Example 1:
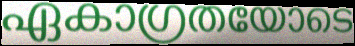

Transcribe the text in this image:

ഏകാഗ്രതയോടെ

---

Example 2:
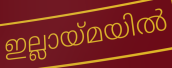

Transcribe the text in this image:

ഇല്ലായ്മയിൽ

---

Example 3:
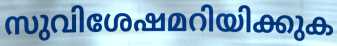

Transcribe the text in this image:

സുവിശേഷമറിയിക്കുക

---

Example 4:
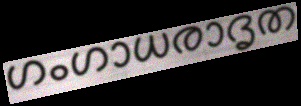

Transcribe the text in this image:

ഗംഗാധരാദൃത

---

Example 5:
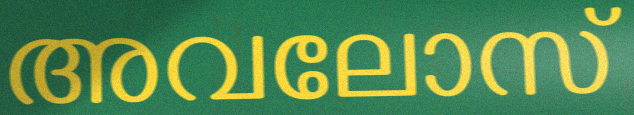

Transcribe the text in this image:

അവലോസ്